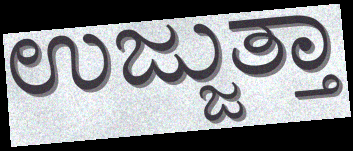
ಉಜ್ಜುತ್ತಾ